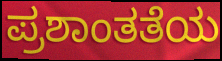
ಪ್ರಶಾಂತತೆಯ